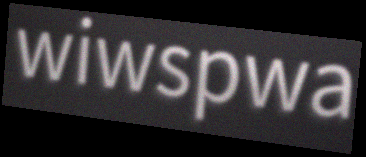
wiwspwa